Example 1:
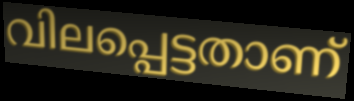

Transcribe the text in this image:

വിലപ്പെട്ടതാണ്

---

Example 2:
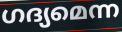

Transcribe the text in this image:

ഗദ്യമെന്ന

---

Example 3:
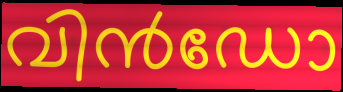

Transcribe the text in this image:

വിൻഡോ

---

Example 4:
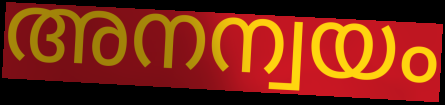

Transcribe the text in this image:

അനന്വയം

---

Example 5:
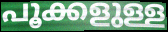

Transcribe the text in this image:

പൂക്കളുള്ള